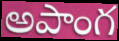
అపాంగ